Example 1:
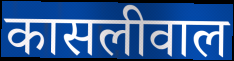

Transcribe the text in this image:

कासलीवाल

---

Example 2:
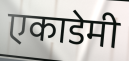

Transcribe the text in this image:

एकाडेमी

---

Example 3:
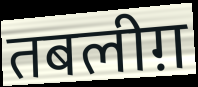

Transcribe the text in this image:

तबलीग़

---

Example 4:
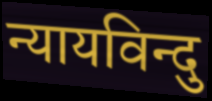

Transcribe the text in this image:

न्यायविन्दु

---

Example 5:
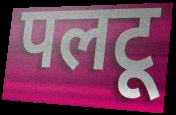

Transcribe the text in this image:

पलटू